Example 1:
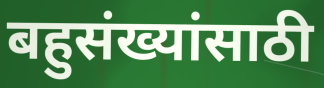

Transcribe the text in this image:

बहुसंख्यांसाठी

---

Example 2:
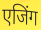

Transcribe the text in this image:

एजिंग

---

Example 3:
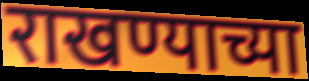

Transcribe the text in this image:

राखण्याच्या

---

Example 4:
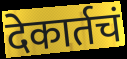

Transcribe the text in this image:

देकार्तचं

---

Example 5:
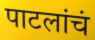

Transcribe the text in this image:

पाटलांचं